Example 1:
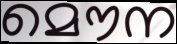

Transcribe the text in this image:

മൌന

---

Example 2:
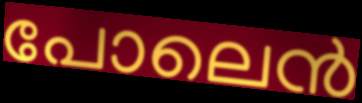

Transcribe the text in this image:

പോലെൻ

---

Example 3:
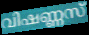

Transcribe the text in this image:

വിഷണ്ണസ്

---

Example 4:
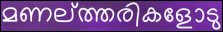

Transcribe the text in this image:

മണല്ത്തരികളോടു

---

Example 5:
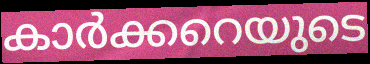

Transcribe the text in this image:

കാർക്കറെയുടെ